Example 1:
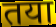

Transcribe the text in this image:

तया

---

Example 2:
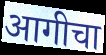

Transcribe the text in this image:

आगीचा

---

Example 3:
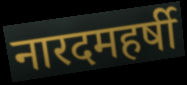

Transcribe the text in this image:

नारदमहर्षी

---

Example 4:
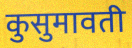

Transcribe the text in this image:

कुसुमावती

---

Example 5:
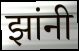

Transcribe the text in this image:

झांनी